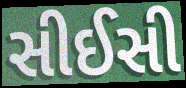
સીઈસી